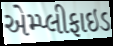
એમ્પ્લીફાઇડ